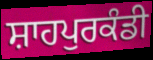
ਸ਼ਾਹਪੁਰਕੰਡੀ